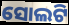
ସୋଲଟି